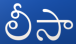
లీసా